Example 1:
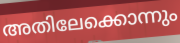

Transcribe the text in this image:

അതിലേക്കൊന്നും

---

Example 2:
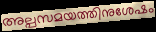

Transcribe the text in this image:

അല്പസമയത്തിനുശേഷം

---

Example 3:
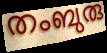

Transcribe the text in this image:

തംബുരു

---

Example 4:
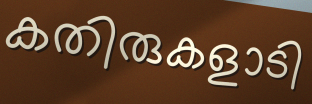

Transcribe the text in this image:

കതിരുകളാടി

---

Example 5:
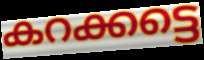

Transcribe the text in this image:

കറക്കട്ടെ